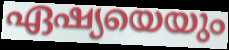
ഏഷ്യയെയും